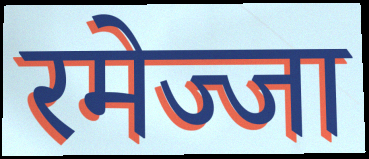
रमेज्जा